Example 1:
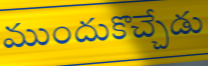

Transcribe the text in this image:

ముందుకొచ్చేడు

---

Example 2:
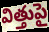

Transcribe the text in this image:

విత్తుపై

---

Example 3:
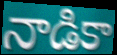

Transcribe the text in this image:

నాడికా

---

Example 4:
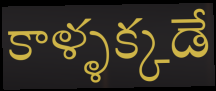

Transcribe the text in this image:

కాళ్ళక్కడే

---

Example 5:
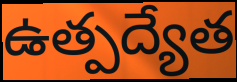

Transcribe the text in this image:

ఉత్పద్యేత